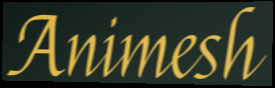
Animesh